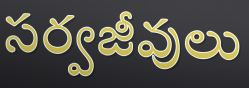
సర్వజీవులు